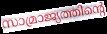
സാമ്രാജ്യത്തിന്റെ